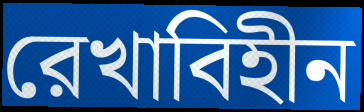
রেখাবিহীন